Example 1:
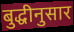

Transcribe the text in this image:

बुद्धीनुसार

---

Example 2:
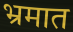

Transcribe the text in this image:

भ्रमात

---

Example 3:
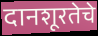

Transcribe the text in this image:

दानशूरतेचे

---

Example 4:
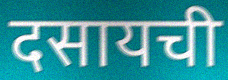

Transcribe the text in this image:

दसायची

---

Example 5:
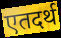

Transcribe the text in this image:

एतदर्थ